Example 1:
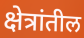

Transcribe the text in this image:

क्षेत्रांतील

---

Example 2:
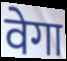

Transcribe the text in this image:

वेगा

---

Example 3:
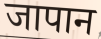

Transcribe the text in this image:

जापान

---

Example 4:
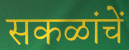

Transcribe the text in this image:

सकळांचें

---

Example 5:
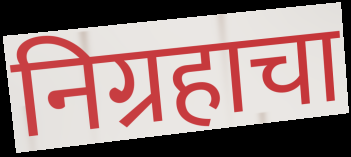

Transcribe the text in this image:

निग्रहाचा